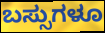
ಬಸ್ಸುಗಳೂ